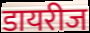
डायरीज